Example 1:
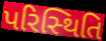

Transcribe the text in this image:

પરિસ્‍થિતિ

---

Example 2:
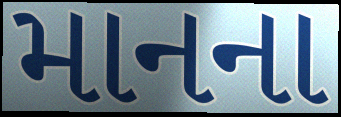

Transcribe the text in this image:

માનના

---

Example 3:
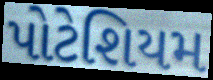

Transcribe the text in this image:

પોટેશિયમ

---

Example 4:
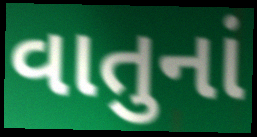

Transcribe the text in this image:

વાતુનાં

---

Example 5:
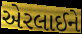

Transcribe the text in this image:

એરલાઈને